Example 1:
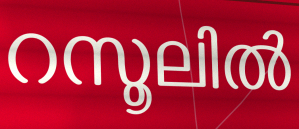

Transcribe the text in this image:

റസൂലിൽ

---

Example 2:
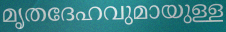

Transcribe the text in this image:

മൃതദേഹവുമായുള്ള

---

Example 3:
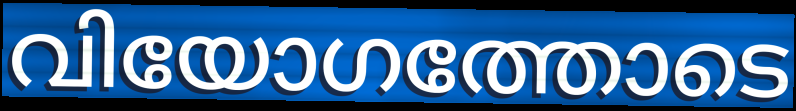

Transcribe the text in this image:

വിയോഗത്തോടെ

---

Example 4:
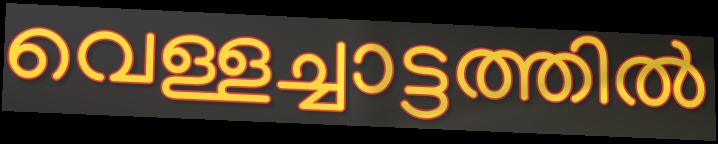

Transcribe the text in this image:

വെള്ളച്ചാട്ടത്തിൽ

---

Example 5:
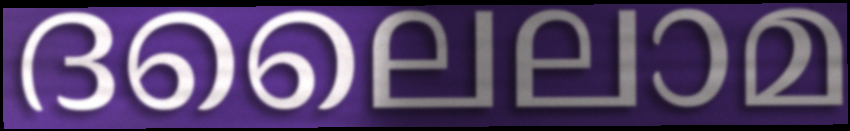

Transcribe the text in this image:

ദലൈലാമ